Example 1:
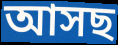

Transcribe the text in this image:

আসছ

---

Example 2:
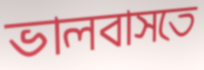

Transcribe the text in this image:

ভালবাসতে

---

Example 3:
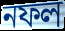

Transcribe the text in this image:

নফল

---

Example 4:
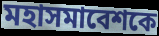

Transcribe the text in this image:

মহাসমাবেশকে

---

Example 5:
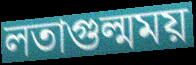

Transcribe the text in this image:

লতাগুল্মময়